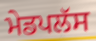
ਮੇਡਪਲੱਸ